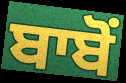
ਬਾਬੋਂ